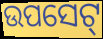
ଉପସେଟ୍